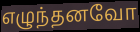
எழுந்தனவோ